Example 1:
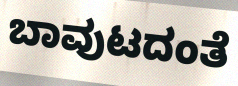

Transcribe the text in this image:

ಬಾವುಟದಂತೆ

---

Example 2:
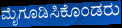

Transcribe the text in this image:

ಮೈಗೂಡಿಸಿಕೊಂಡರು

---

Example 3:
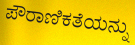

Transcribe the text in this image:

ಪೌರಾಣಿಕತೆಯನ್ನು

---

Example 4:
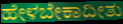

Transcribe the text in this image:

ಹೇಳಬೇಕಾದೀತು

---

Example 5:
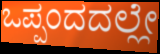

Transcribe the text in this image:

ಒಪ್ಪಂದದಲ್ಲೇ